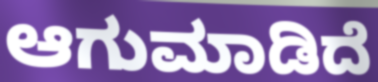
ಆಗುಮಾಡಿದೆ